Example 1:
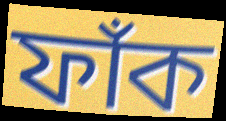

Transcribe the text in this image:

ফাঁক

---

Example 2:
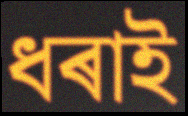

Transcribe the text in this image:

ধৰাই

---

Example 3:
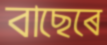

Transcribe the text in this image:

বাছেৰে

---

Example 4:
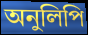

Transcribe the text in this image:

অনুলিপি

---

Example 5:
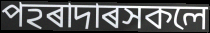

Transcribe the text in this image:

পহৰাদাৰসকলে